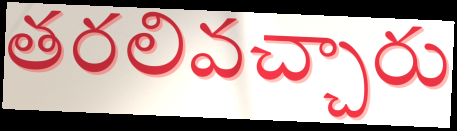
తరలివచ్చారు